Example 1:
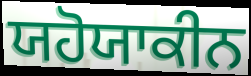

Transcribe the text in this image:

ਯਹੋਯਾਕੀਨ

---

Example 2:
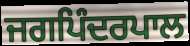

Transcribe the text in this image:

ਜਗਪਿੰਦਰਪਾਲ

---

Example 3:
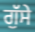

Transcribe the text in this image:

ਗੁੱਸੇ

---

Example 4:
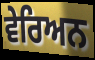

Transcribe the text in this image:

ਵੇਰਿਅਨ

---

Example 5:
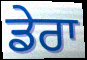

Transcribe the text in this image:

ਡੇਰਾ